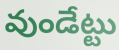
వుండేట్టు